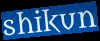
shikun